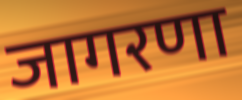
जागरणा